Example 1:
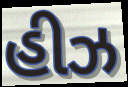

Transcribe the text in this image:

હીઝ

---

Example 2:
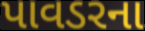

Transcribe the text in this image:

પાવડરના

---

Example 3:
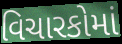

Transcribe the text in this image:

વિચારકોમાં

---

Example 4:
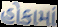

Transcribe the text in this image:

હોકામાં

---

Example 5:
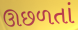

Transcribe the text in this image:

ઊછળતાં